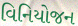
વિનિયોજન